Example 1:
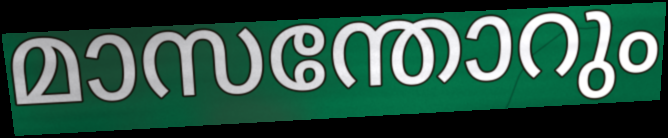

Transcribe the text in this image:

മാസന്തോറും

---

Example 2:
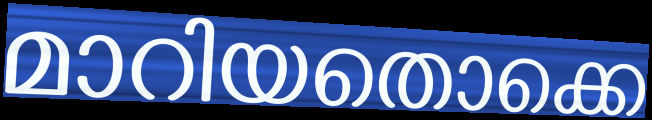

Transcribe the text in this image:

മാറിയതൊക്കെ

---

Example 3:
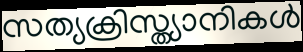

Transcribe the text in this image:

സത്യക്രിസ്ത്യാനികൾ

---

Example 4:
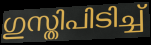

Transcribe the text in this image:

ഗുസ്തിപിടിച്ച്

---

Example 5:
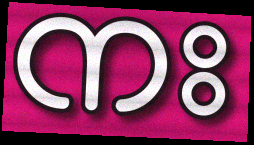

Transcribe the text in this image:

നഃ